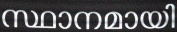
സ്ഥാനമായി